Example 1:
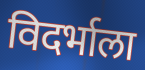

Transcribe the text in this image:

विदर्भाला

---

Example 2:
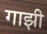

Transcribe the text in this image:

गाझी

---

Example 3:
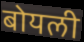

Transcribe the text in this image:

बोयली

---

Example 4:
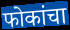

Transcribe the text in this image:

फोकांचा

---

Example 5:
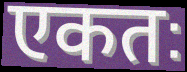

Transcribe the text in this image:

एकतः